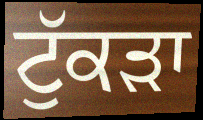
ਟੁੱਕੜਾ